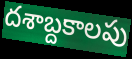
దశాబ్దకాలపు